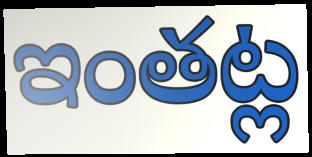
ఇంతట్ల